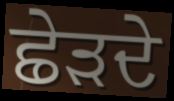
ਛੇੜਦੇ